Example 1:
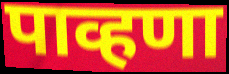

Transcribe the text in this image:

पाव्हणा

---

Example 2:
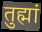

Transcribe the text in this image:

तुह्मां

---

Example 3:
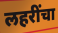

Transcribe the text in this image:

लहरींचा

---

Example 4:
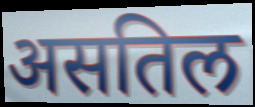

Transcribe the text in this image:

असतिल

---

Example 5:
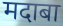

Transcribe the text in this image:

मदाबा